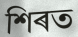
শিৰত